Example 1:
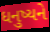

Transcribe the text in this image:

ધનુષ્યને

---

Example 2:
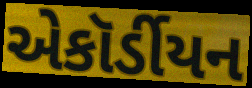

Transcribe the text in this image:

એકૉર્ડીયન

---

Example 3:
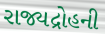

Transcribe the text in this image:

રાજ્યદ્રોહની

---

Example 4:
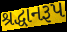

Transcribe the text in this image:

શ્રદ્ધાનરૂપ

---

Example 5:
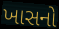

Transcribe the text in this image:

ખાસનો